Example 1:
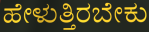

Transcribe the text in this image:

ಹೇಳುತ್ತಿರಬೇಕು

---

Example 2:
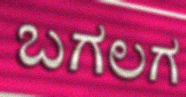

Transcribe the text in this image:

ಬಗಲಗ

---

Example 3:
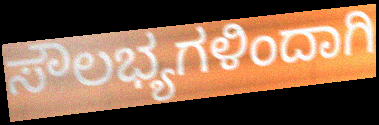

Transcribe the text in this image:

ಸೌಲಭ್ಯಗಳಿಂದಾಗಿ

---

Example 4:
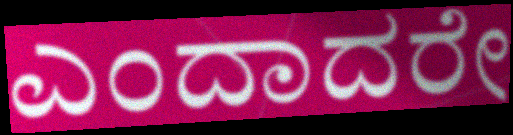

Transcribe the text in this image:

ಎಂದಾದರೇ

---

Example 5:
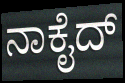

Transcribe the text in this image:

ನಾಕೈದ್